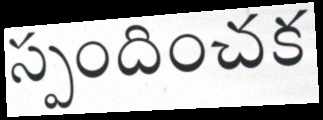
స్పందించక